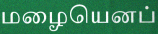
மழையெனப்